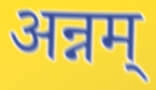
अन्नम्